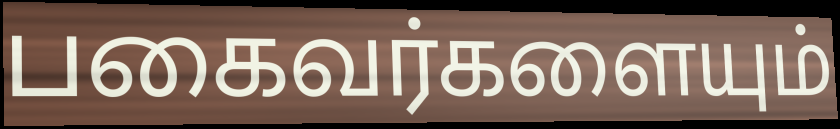
பகைவர்களையும்